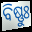
ବିଷ୍ଣୁଃ